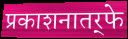
प्रकाशनातर्फे